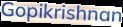
Gopikrishnan